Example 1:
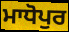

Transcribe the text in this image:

ਮਾਧੋਪੁਰ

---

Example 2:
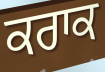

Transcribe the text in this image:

ਕਰਾਕ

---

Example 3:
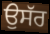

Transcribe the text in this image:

ਉਸੱਰ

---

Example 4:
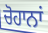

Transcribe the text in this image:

ਚੋਹਾਨਾਂ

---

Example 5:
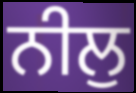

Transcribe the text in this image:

ਨੀਲੁ